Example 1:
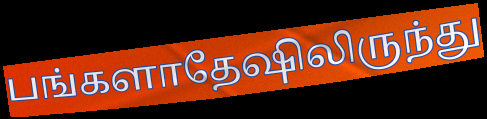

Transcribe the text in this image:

பங்களாதேஷிலிருந்து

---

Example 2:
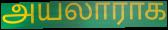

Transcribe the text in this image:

அயலாராக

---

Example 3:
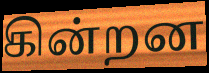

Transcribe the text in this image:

கின்றன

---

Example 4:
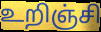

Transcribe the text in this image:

உறிஞ்சி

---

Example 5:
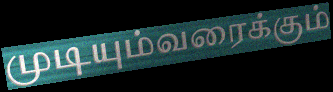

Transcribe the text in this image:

முடியும்வரைக்கும்